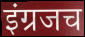
इंग्रजच